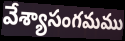
వేశ్యాసంగమము